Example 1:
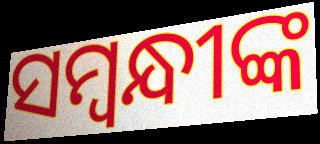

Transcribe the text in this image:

ସମ୍ବନ୍ଧୀଙ୍କ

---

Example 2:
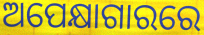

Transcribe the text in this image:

ଅପେକ୍ଷାଗାରରେ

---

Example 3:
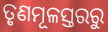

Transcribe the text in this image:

ତୃଣମୂଳସ୍ତରରୁ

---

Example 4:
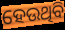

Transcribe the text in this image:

ହେଉଥିବି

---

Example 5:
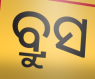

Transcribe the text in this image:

ବ୍ରୁସ